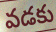
వడకు